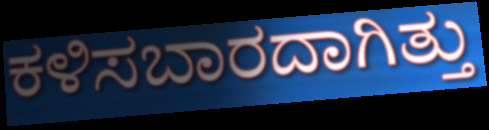
ಕಳಿಸಬಾರದಾಗಿತ್ತು